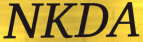
NKDA